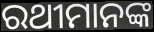
ରଥୀମାନଙ୍କ